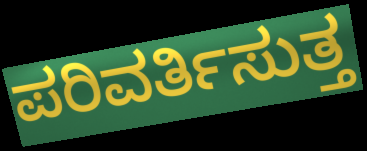
ಪರಿವರ್ತಿಸುತ್ತ